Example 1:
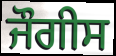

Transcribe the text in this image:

ਜੌਗੀਸ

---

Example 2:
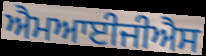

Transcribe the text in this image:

ਐਮਆਈਜੀਐਸ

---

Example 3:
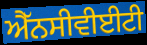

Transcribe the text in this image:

ਐੱਨਸੀਵੀਈਟੀ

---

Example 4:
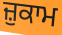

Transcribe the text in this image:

ਜ਼ੁਕਾਮ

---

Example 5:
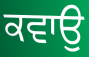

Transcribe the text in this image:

ਕਵਾਉ